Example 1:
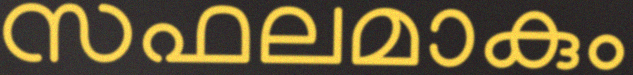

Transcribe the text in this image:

സഫലമാകും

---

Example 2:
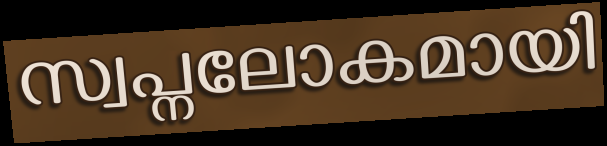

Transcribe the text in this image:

സ്വപ്നലോകമായി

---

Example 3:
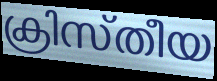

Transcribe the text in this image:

ക്രിസ്‌തീയ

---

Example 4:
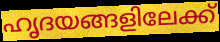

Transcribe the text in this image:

ഹൃദയങ്ങളിലേക്ക്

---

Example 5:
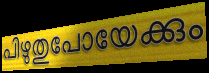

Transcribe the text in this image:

പിഴുതുപോയേക്കും